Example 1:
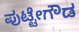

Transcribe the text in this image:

ಪುಟ್ಟೇಗೌಡ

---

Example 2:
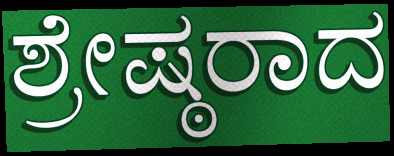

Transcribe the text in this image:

ಶ್ರೇಷ್ಠರಾದ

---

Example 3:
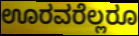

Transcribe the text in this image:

ಊರವರೆಲ್ಲರೂ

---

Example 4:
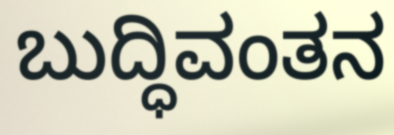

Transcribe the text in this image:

ಬುದ್ಧಿವಂತನ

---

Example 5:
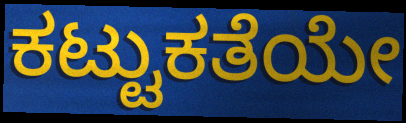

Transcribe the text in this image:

ಕಟ್ಟುಕತೆಯೇ